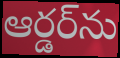
ఆర్డర్‌ను